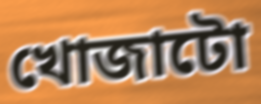
খোজাটো